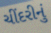
ચીંદરીનું